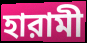
হারামী